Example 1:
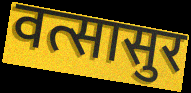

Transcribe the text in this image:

वत्सासुर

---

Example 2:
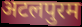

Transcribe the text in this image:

अटलपुरम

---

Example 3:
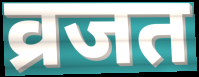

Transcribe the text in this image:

व्रजत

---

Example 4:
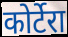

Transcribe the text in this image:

कोर्टेरा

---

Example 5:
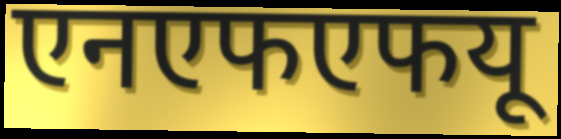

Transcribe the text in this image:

एनएफएफयू